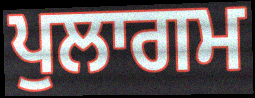
ਪੁਲਾਗਮ